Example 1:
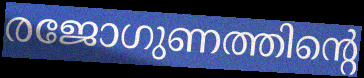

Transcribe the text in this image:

രജോഗുണത്തിന്റെ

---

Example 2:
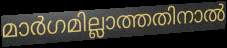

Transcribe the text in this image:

മാർഗമില്ലാത്തതിനാൽ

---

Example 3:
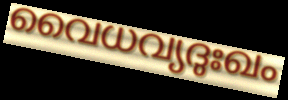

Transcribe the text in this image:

വൈധവ്യദുഃഖം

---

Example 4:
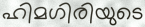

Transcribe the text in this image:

ഹിമഗിരിയുടെ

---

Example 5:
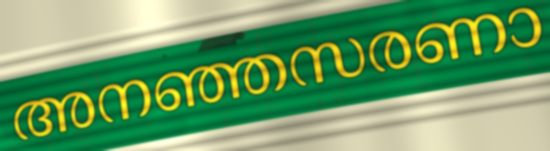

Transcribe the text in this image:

അനഞ്ഞസരണാ